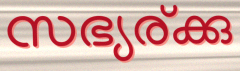
സഭ്യര്ക്കു